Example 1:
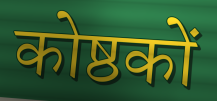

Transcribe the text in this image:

कोष्ठकों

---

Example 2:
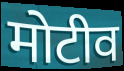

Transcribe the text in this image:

मोटीव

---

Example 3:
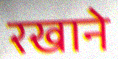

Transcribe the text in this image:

रखाने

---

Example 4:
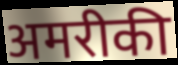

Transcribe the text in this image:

अमरीकी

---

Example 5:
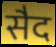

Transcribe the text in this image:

सैद